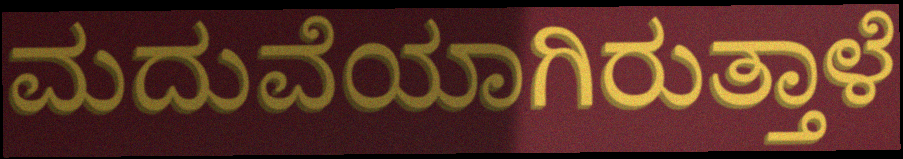
ಮದುವೆಯಾಗಿರುತ್ತಾಳೆ